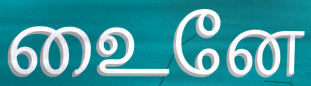
உைனே